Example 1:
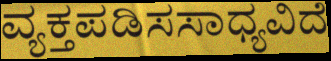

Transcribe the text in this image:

ವ್ಯಕ್ತಪಡಿಸಸಾಧ್ಯವಿದೆ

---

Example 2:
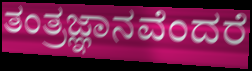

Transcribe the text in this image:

ತಂತ್ರಜ್ಞಾನವೆಂದರೆ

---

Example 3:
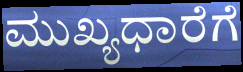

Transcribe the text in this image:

ಮುಖ್ಯಧಾರೆಗೆ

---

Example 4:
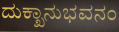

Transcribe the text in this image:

ದುಕ್ಖಾನುಭವನಂ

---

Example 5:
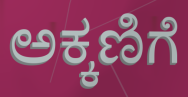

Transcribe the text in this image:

ಅಕ್ಕಣಿಗೆ